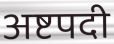
अष्टपदी